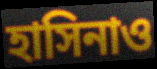
হাসিনাও